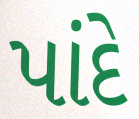
પાંદે